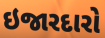
ઇજારદારો